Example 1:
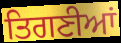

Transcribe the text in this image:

ਤਿਗਣੀਆਂ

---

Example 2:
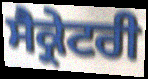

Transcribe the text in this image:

ਸੈਕ੍ਰੇਟਰੀ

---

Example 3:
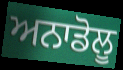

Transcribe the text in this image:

ਅਨਾਡੋਲੂ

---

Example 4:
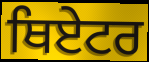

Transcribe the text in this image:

ਥਿਏਟਰ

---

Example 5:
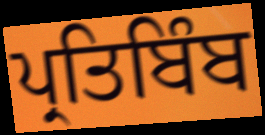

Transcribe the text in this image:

ਪ੍ਰਤਿਬਿੰਬ